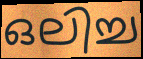
ഒലിച്ച